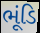
ભૂંડિ